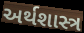
અર્થશાસ્ત્ર